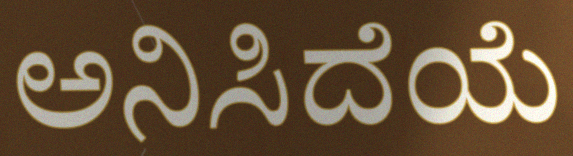
ಅನಿಸಿದೆಯೆ